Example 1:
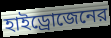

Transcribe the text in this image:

হাইড্রোজেনের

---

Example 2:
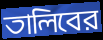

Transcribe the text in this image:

তালিবের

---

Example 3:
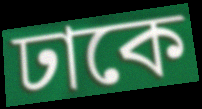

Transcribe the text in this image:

ঢাকে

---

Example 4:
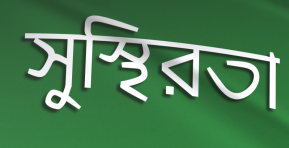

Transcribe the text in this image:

সুস্থিরতা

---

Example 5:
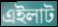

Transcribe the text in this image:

এইলাট